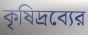
কৃষিদ্রব্যের